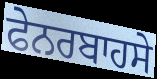
ਫੇਨਰਬਾਹਸੇ